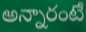
అన్నారంటే